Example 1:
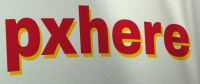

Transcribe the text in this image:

pxhere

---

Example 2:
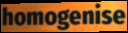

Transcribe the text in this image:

homogenise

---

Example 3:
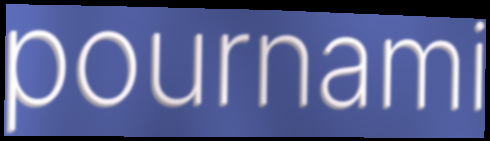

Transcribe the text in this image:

pournami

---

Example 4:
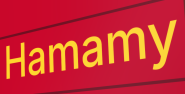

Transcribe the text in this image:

Hamamy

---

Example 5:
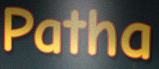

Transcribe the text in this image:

Patha